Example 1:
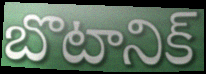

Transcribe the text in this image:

బొటానిక్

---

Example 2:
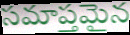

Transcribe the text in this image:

సమాప్తమైన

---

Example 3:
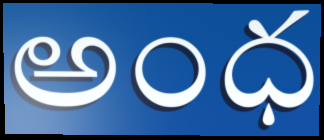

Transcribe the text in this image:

అంధ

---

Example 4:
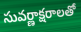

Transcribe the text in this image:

సువర్ణాక్షరాలతో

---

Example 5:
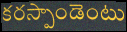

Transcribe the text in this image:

కరస్పాండెంటు